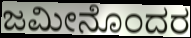
ಜಮೀನೊಂದರ